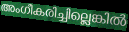
അംഗീകരിച്ചില്ലെങ്കിൽ